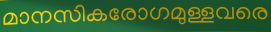
മാനസികരോഗമുള്ളവരെ